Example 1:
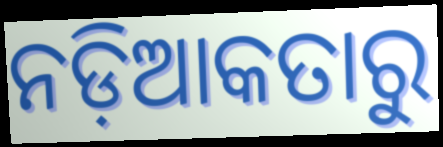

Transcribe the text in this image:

ନଡ଼ିଆକତାରୁ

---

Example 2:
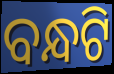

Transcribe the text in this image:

ବନ୍ଧଟି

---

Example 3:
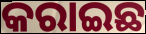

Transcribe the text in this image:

କରାଇଛ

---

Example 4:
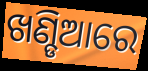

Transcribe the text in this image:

ଖଣ୍ଡିଆରେ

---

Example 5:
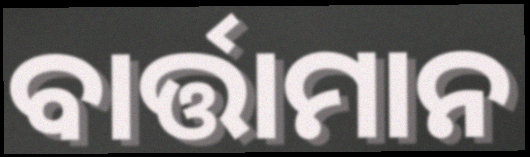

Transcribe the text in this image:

ବାର୍ତ୍ତାମାନ